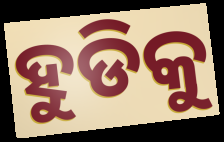
ହୁଡିକୁ